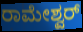
ರಾಮೇಶ್ವರ್